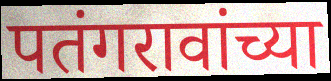
पतंगरावांच्या